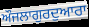
ਔਜਲਾਗੁਰਦੁਆਰਾ